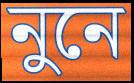
নুনে